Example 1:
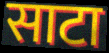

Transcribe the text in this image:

साटा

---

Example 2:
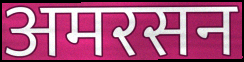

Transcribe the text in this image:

अमरसन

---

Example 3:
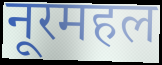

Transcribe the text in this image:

नूरमहल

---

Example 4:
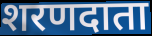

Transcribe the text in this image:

शरणदाता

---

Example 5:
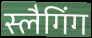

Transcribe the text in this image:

स्लैगिंग